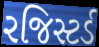
રજિસ્ટર્ડ